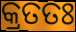
କ୍ରତତଃ